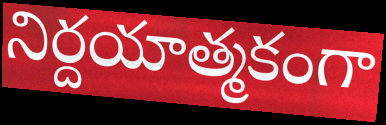
నిర్దయాత్మకంగా